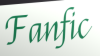
Fanfic